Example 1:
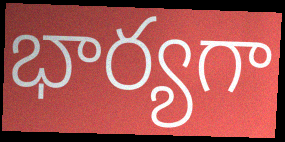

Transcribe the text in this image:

భార్యగా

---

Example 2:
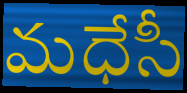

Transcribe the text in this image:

మధేసీ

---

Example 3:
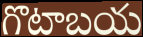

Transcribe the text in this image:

గొటాబయ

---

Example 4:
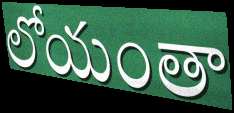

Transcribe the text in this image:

లోయంతా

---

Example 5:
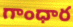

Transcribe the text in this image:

గాంధార